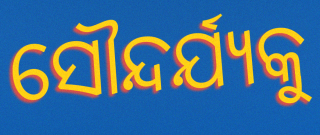
ସୌନ୍ଦର୍ଯ୍ଯକୁ